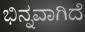
ಭಿನ್ನವಾಗಿದೆ